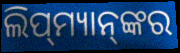
ଲିପ୍‌ମ୍ୟାନ୍‌ଙ୍କର